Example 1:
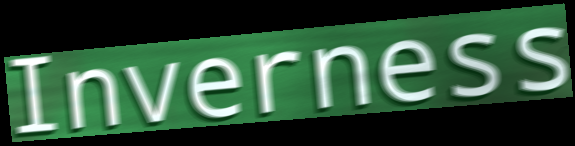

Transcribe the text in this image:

Inverness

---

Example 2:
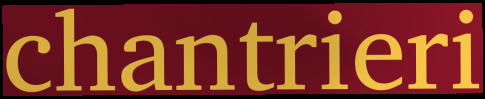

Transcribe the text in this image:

chantrieri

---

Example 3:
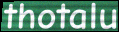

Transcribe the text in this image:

thotalu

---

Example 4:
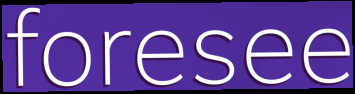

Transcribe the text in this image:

foresee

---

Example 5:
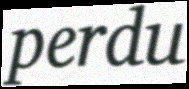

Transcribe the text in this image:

perdu